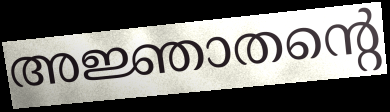
അജ്ഞാതന്റെ